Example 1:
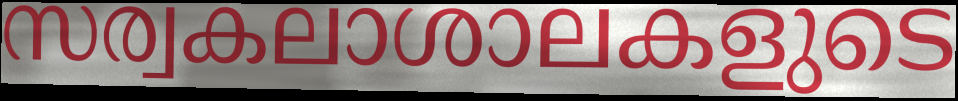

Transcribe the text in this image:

സര്വകലാശാലകളുടെ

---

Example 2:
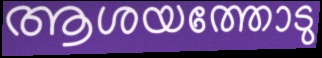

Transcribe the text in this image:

ആശയത്തോടു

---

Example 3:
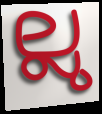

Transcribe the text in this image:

ല്ലു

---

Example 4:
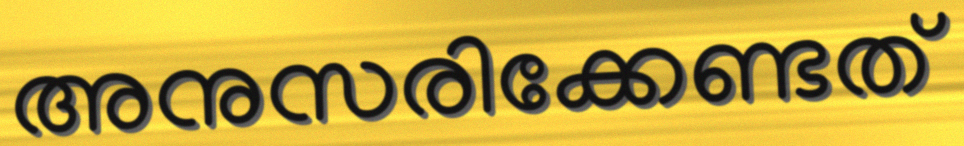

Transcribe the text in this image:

അനുസരിക്കേണ്ടത്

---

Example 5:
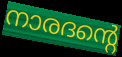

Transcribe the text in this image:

നാരദന്റെ